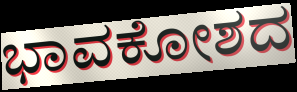
ಭಾವಕೋಶದ